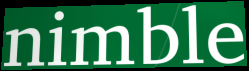
nimble